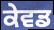
ਕੇਵਡ